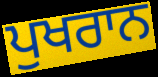
ਪੁਖਰਾਨ